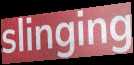
slinging